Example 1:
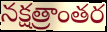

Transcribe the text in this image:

నక్షత్రాంతర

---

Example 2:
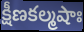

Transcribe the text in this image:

క్షీణకల్మషాః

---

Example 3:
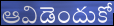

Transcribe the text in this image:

ఆవిడెందుకో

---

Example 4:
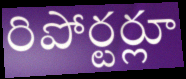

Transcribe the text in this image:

రిపోర్టర్లూ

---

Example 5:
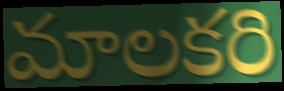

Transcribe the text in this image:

మాలకరి